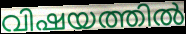
വിഷയത്തിൽ